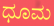
ಧೂಮ